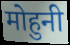
मोहुनी